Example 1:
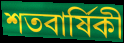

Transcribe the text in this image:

শতবার্ষিকী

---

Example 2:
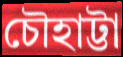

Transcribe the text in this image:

চৌহাট্টা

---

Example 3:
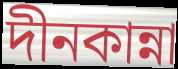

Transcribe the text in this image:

দীনকান্না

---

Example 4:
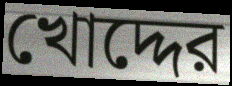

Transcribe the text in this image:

খোদ্দের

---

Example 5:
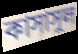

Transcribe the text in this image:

কাসাসুল